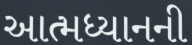
આત્મધ્યાનની